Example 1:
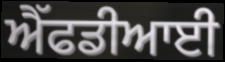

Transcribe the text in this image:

ਐੱਫਡੀਆਈ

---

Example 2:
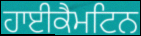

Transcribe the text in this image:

ਹਾਈਕੈਮਟਿਨ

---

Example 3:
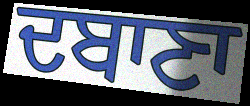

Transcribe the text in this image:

ਦਬਾਣਾ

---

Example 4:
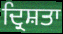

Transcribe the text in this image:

ਦ੍ਰਿਸ਼ਤਾ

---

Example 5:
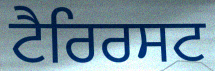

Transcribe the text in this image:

ਟੈਰਿਰਸਟ